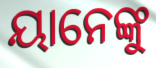
ୟାନେଙ୍କୁ